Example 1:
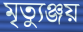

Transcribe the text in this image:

মৃত্যুঞ্জয়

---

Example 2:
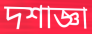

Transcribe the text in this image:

দশাজ্ঞা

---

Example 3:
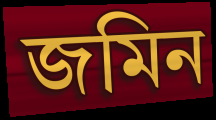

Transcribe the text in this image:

জমিন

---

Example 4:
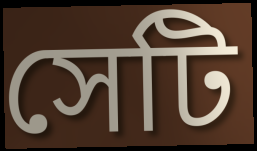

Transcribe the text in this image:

সেটি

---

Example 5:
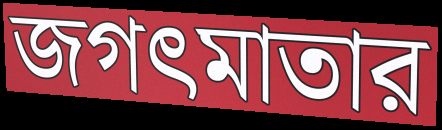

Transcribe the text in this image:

জগৎমাতার